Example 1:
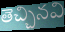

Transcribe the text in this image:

తెచ్చినవి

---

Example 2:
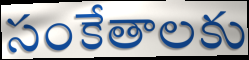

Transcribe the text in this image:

సంకేతాలకు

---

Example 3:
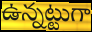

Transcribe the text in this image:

ఉన్నట్టుగా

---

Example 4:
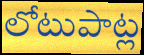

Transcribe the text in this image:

లోటుపాట్ల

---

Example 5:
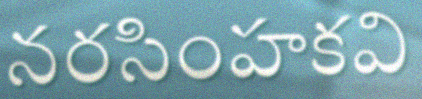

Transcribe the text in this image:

నరసింహకవి